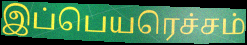
இப்பெயரெச்சம்